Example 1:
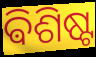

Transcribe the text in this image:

ଵିଶିଷ୍ଟ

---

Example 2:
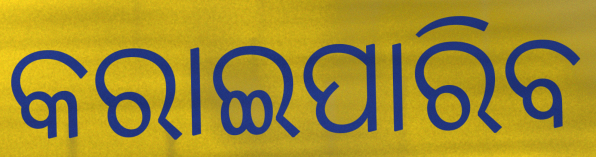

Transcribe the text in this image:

କରାଇପାରିବ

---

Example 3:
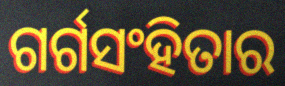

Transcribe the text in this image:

ଗର୍ଗସଂହିତାର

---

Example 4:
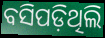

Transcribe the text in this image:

ବସିପଡ଼ିଥିଲି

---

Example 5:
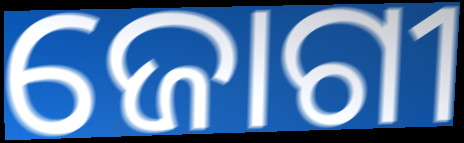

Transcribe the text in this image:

ଜୋଗୀ